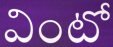
వింటో